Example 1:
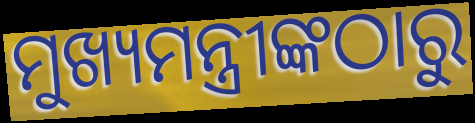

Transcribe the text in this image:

ମୁଖ୍ୟମନ୍ତ୍ରୀଙ୍କଠାରୁ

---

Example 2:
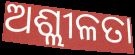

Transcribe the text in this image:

ଅଶ୍ଲୀଳତା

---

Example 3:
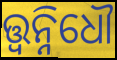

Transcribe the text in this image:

ତ୍ତ୍ଵନ୍ନିଧୌ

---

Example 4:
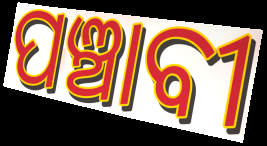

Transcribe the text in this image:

ପଞ୍ଚାବୀ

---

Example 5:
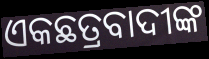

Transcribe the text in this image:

ଏକଛତ୍ରବାଦୀଙ୍କ